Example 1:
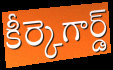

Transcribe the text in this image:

కీర్కెగార్డ్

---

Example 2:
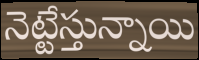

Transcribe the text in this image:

నెట్టేస్తున్నాయి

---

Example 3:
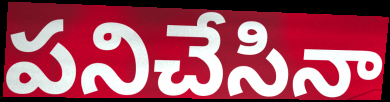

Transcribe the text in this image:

పనిచేసినా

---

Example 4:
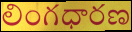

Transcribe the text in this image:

లింగధారణ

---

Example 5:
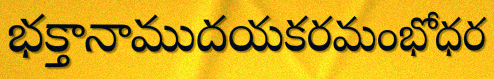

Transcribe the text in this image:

భక్తానాముదయకరమంభోధర